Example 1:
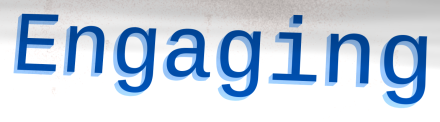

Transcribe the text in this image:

Engaging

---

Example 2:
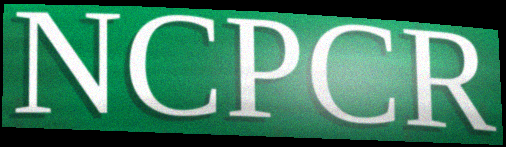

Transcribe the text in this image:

NCPCR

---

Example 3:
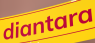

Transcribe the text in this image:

diantara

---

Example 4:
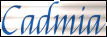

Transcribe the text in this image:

Cadmia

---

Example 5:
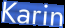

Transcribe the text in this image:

Karin